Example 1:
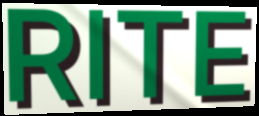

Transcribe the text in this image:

RITE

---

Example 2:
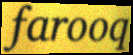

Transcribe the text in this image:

farooq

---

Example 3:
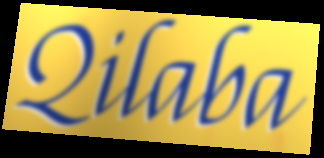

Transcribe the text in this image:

Qilaba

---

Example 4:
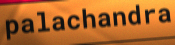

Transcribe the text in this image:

palachandra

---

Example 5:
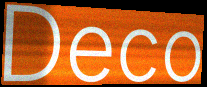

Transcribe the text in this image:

Deco